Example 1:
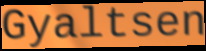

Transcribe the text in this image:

Gyaltsen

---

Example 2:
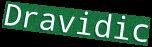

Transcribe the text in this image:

Dravidic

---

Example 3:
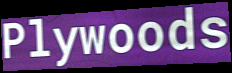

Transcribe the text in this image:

Plywoods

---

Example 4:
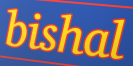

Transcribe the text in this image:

bishal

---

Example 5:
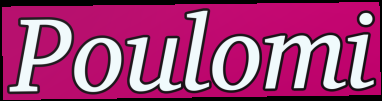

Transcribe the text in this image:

Poulomi